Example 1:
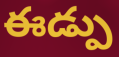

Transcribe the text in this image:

ఈడ్పు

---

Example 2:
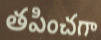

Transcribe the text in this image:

తపించగా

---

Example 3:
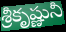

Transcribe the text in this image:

శ్రీకృష్ణునీ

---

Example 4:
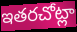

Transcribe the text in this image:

ఇతరచోట్లా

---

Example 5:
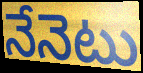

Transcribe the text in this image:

నేనెటు